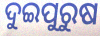
ଦୁଇପୁରୁଷ